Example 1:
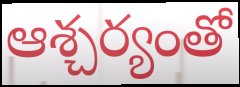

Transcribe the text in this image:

ఆశ్చర్యంతో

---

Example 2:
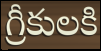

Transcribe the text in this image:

గ్రీకులకి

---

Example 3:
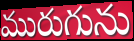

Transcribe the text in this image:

మురుగును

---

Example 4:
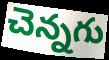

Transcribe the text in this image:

చెన్నగు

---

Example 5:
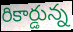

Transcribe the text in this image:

రికార్డున్న